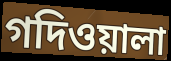
গদিওয়ালা